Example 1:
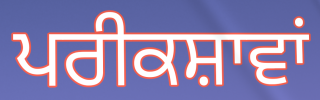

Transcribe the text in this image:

ਪਰੀਕਸ਼ਾਵਾਂ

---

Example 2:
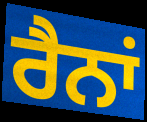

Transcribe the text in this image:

ਰੈਨਾਂ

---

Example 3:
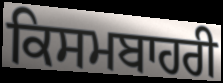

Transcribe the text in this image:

ਕਿਸਮਬਾਹਰੀ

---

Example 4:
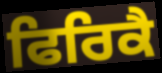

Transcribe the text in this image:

ਫਿਰਿਕੈ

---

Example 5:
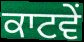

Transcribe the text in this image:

ਕਾਟਵੇਂ